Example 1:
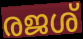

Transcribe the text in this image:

രജശ്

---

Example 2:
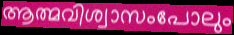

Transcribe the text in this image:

ആത്മവിശ്വാസംപോലും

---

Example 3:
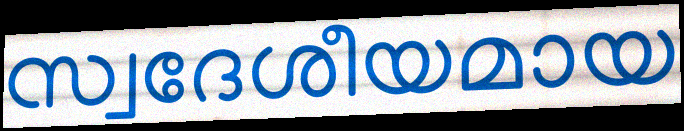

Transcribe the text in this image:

സ്വദേശീയമായ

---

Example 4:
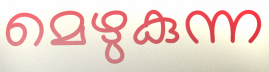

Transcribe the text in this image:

മെഴുകുന്ന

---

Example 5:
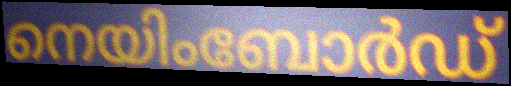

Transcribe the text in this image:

നെയിംബോർഡ്